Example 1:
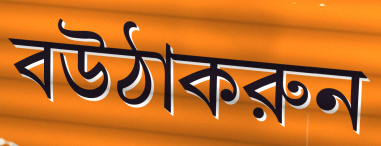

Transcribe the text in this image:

বউঠাকরুন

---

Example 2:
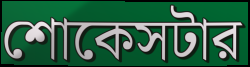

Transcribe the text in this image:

শোকেসটার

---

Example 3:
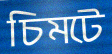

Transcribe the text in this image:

চিমটে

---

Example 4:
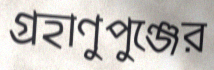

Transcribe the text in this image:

গ্রহাণুপুঞ্জের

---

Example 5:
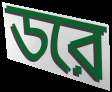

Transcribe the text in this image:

ডরে